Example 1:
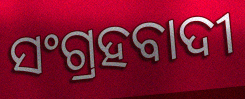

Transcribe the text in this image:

ସଂଗ୍ରହବାଦୀ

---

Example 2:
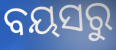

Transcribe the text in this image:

ବୟସରୁ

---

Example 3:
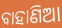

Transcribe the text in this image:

ବାହାଣିଆ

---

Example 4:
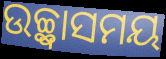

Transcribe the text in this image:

ଉଚ୍ଛ୍ୱାସମୟ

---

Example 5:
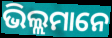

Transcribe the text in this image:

ଭିଲ୍ଲମାନେ